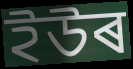
ইউৰ